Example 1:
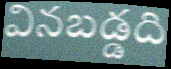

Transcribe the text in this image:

వినబడ్డది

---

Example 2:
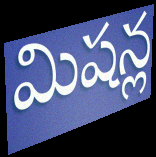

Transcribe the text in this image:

మిషన్ల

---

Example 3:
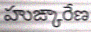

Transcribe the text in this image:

హుఙ్కారేణ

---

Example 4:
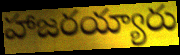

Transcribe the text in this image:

హాజరయ్యారు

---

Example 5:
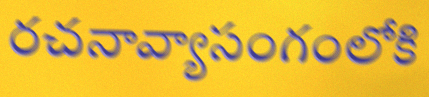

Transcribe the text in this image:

రచనావ్యాసంగంలోకి